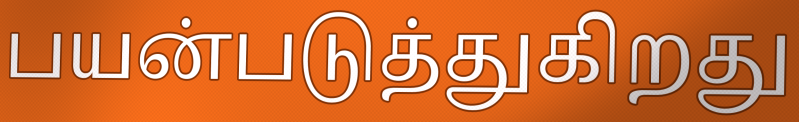
பயன்படுத்துகிறது